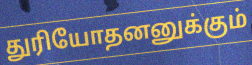
துரியோதனனுக்கும்